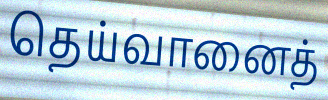
தெய்வானைத்